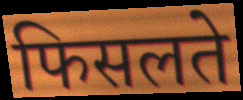
फिसलते